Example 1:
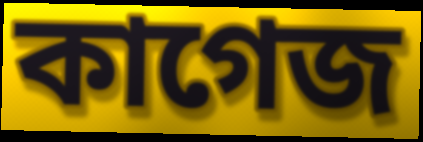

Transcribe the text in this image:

কাগেজ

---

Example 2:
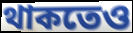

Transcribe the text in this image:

থাকতেও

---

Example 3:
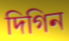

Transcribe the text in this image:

দিগিন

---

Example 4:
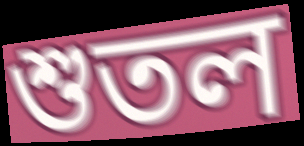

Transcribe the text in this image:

শুতল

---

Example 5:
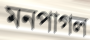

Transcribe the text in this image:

মনপাগল